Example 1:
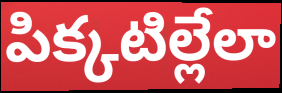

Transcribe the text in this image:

పిక్కటిల్లేలా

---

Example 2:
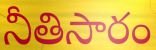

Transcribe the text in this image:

నీతిసారం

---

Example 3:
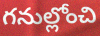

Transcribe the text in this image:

గనుల్లోంచి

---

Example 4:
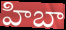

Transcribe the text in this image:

హిబా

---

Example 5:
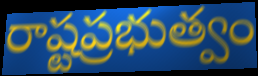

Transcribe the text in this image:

రాష్టప్రభుత్వం